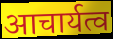
आचार्यत्व